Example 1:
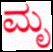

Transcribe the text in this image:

ಮೃ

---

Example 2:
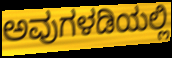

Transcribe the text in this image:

ಅವುಗಳಡಿಯಲ್ಲಿ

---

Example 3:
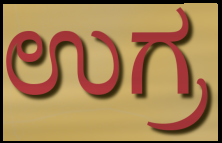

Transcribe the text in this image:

ಉಗ್ರ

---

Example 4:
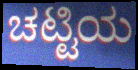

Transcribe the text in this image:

ಚಟ್ಟಿಯ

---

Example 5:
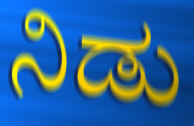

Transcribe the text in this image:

ನಿಡು